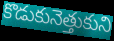
కొడుకునెత్తుకుని